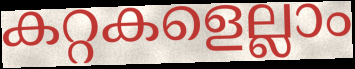
കറ്റകളെല്ലാം